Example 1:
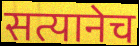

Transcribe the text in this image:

सत्यानेच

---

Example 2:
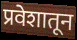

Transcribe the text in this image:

प्रवेशातून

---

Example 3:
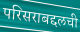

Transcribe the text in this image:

परिसराबद्दलची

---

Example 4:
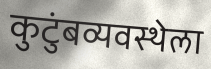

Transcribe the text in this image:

कुटुंबव्यवस्थेला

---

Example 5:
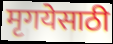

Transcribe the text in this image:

मृगयेसाठी